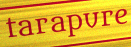
tarapure